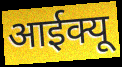
आईक्यू